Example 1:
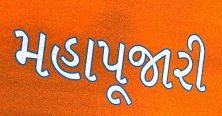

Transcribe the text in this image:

મહાપૂજારી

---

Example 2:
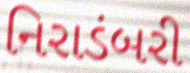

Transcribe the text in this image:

નિરાડંબરી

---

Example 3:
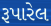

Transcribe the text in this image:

રૂપારેલ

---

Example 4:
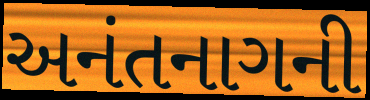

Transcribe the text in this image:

અનંતનાગની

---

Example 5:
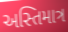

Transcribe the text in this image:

અસ્તિમાત્ર